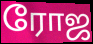
ரோஜ